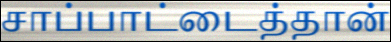
சாப்பாட்டைத்தான்